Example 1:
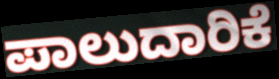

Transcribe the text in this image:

ಪಾಲುದಾರಿಕೆ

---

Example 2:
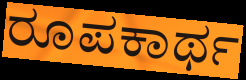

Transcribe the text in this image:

ರೂಪಕಾರ್ಥ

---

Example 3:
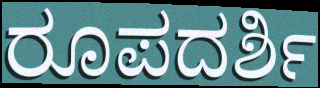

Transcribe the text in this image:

ರೂಪದರ್ಶಿ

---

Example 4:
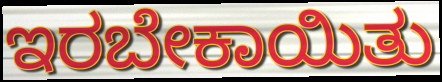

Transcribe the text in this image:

ಇರಬೇಕಾಯಿತು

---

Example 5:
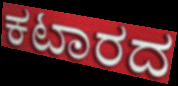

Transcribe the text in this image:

ಕಟಾರದ